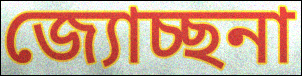
জ্যোচ্ছনা